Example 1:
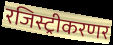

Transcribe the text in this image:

रजिस्ट्रीकरणर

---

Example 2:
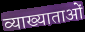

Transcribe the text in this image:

व्याख्याताओं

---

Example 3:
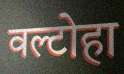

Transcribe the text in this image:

वल्टोहा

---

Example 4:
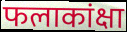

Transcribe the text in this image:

फलाकांक्षा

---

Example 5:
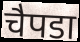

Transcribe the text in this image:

चैपडा